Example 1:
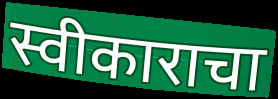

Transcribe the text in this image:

स्वीकाराचा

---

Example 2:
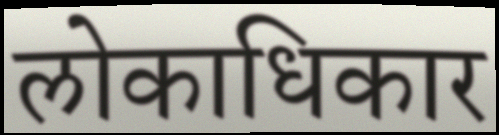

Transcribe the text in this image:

लोकाधिकार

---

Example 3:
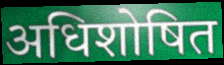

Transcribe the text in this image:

अधिशोषित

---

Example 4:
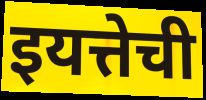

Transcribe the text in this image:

इयत्तेची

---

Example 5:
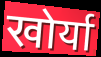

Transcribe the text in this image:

खोर्या